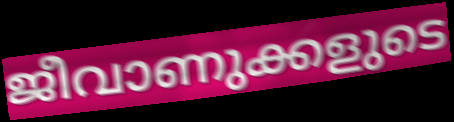
ജീവാണുക്കളുടെ